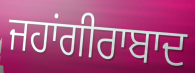
ਜਹਾਂਗੀਰਾਬਾਦ